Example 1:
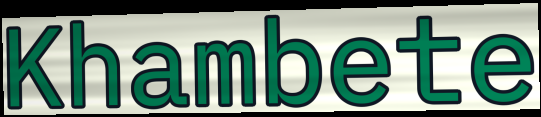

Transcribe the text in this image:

Khambete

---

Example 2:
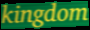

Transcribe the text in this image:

kingdom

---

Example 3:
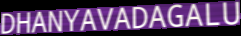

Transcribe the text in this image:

DHANYAVADAGALU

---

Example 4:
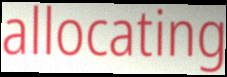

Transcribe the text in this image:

allocating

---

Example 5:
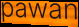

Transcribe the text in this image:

pawan